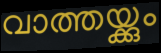
വാത്തയ്ക്കും